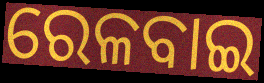
ରେଳବାଇ